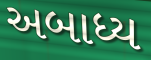
અબાધ્ય